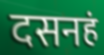
दसनहं